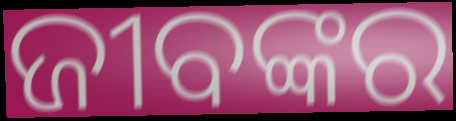
ଜୀବଙ୍କର